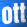
ott